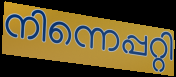
നിന്നെപ്പറ്റി